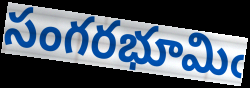
సంగరభూమిఁ